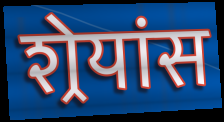
श्रेयांस